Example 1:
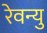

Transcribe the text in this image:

रेवन्यु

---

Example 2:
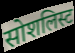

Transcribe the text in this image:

सोशलिस्‍ट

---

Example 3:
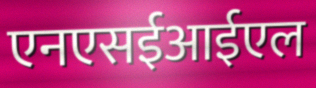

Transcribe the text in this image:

एनएसईआईएल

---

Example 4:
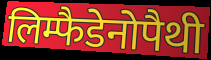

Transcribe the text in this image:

लिम्फैडेनोपैथी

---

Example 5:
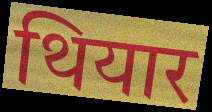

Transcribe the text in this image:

थियार